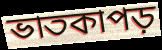
ভাতকাপড়